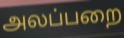
அலப்பறை